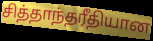
சித்தாந்தரீதியான